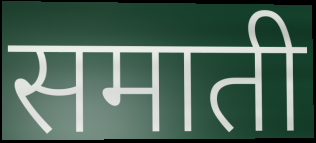
समाती